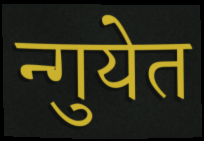
न्गुयेत